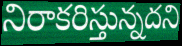
నిరాకరిస్తున్నదని